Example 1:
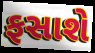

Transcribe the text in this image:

ફસાશે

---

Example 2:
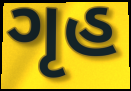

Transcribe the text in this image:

ગૃહ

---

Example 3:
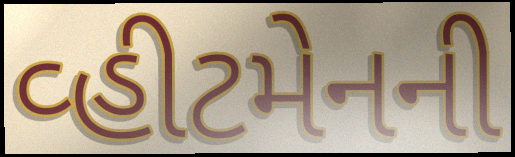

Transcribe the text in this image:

વ્હીટમેનની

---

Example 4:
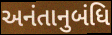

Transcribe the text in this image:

અનંતાનુબંધિ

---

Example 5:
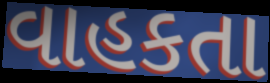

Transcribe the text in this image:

વાહકતા